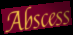
Abscess